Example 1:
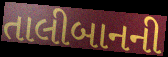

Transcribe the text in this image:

તાલીબાનની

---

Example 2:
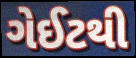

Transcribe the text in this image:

ગેઈટથી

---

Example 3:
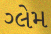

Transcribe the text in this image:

ગ્લેમ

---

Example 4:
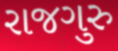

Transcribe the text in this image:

રાજગુરુ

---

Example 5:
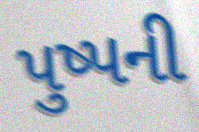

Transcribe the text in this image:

પુષ્પની